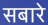
सबारे